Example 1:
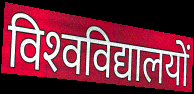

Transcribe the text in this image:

विश्‍वविद्यालयों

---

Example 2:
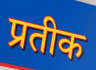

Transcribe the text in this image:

प्रतीक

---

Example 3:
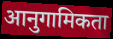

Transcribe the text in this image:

आनुगामिकता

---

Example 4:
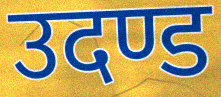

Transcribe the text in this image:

उदण्ड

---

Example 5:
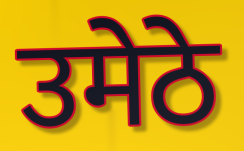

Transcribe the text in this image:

उमेठे